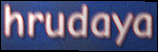
hrudaya